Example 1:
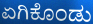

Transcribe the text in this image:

ಏಗಿಕೊಂಡು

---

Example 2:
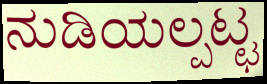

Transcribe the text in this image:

ನುಡಿಯಲ್ಪಟ್ಟ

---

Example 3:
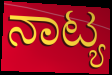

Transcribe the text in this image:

ನಾಟ್ಯ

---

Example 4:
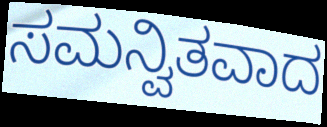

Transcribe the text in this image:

ಸಮನ್ವಿತವಾದ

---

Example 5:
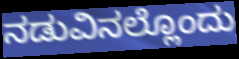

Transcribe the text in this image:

ನಡುವಿನಲ್ಲೊಂದು